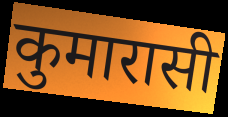
कुमारासी